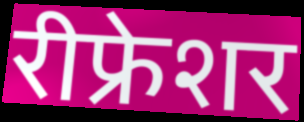
रीफ्रेशर